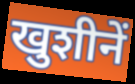
खुशीनें